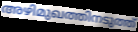
അഴിമുഖത്തിനടുത്ത്